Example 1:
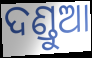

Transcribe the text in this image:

ଦଣ୍ଡୁଆ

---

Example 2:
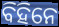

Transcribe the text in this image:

ବିହିନେ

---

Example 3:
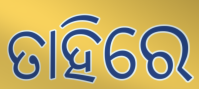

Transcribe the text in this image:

ତାହିରେ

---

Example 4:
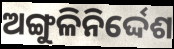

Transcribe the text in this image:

ଅଙ୍ଗୁଳିନିର୍ଦ୍ଦେଶ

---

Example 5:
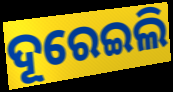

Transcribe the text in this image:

ଦୂରେଇଲି